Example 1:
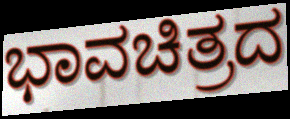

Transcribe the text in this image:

ಭಾವಚಿತ್ರದ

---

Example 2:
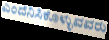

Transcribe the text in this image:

ಎಂದೆನಿಸಿಕೊಳ್ಳುವವರು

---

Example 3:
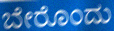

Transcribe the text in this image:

ಬೇರೊಂದು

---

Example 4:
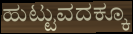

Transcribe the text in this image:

ಹುಟ್ಟುವದಕ್ಕೂ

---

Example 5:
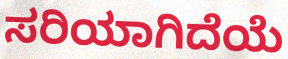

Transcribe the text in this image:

ಸರಿಯಾಗಿದೆಯೆ